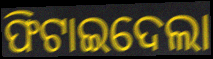
ଫିଟାଇଦେଲା